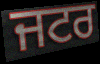
ਜਟਰ